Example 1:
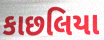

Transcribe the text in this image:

કાછલિયા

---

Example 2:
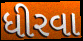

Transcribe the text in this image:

ધીરવા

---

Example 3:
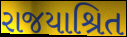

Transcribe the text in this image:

રાજયાશ્રિત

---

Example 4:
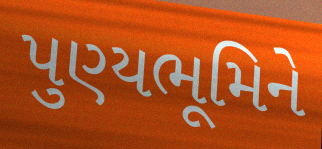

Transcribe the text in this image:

પુણ્યભૂમિને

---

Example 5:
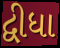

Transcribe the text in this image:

દ્વીધા